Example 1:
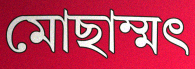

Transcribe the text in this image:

মোছাম্মৎ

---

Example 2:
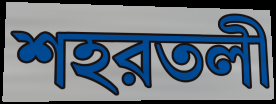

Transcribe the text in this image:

শহরতলী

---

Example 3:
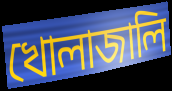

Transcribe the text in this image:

খোলাজালি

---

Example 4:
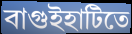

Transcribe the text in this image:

বাগুইহাটিতে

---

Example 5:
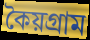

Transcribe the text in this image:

কৈয়গ্রাম